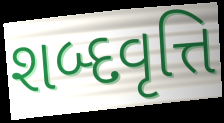
શબ્દવૃત્તિ